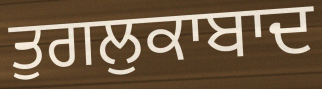
ਤੁਗਲੁਕਾਬਾਦ